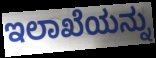
ಇಲಾಖೆಯನ್ನು